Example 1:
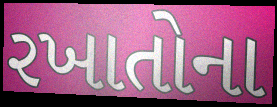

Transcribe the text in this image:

રખાતોના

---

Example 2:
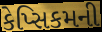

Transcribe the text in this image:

કેપ્સિકમની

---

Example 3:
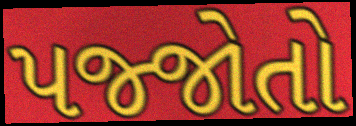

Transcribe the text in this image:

પજ્જોતો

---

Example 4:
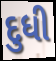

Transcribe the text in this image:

દુધી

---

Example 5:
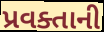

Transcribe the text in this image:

પ્રવક્તાની